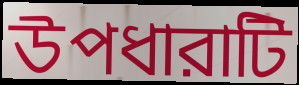
উপধারাটি